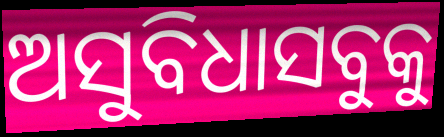
ଅସୁବିଧାସବୁକୁ